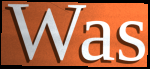
Was